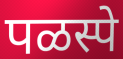
पळस्पे